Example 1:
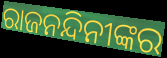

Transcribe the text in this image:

ରାଜନନ୍ଦିନୀଙ୍କର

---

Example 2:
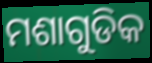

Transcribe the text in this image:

ମଶାଗୁଡିକ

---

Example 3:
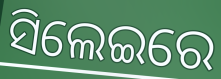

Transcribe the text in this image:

ସିଲେଇରେ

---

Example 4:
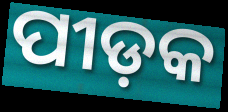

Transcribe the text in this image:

ପୀଡ଼କ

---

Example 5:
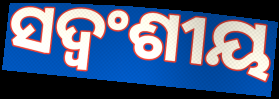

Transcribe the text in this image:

ସଦ୍ବଂଶୀୟ